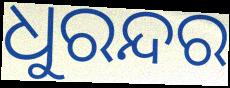
ଧୁରନ୍ଦର